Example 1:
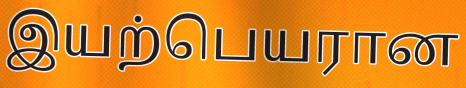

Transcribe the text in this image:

இயற்பெயரான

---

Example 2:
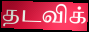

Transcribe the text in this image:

தடவிக்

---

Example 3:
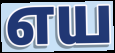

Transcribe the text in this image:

எய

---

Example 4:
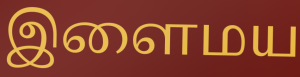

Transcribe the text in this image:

இளைமய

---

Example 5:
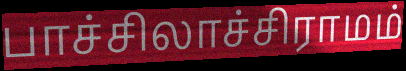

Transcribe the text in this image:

பாச்சிலாச்சிராமம்